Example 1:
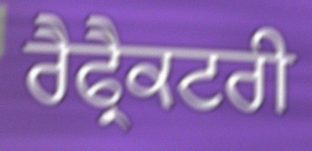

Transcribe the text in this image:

ਰੈਫ੍ਰੈਕਟਰੀ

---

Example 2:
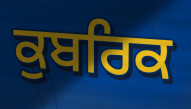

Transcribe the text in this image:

ਕੁਬਰਿਕ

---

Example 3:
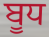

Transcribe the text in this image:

ਬੂਧ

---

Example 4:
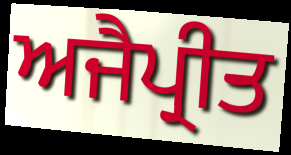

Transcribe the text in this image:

ਅਜੈਪ੍ਰੀਤ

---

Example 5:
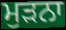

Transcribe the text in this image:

ਮੁੜਨਾ